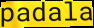
padala